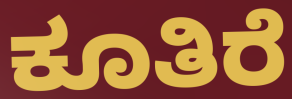
ಕೂತಿರೆ